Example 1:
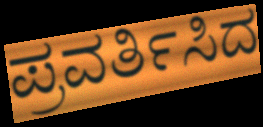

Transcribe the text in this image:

ಪ್ರವರ್ತಿಸಿದ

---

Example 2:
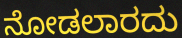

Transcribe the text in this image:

ನೋಡಲಾರದು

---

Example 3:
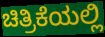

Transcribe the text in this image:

ಚಿತ್ರಿಕೆಯಲ್ಲಿ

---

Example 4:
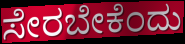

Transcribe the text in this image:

ಸೇರಬೇಕೆಂದು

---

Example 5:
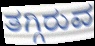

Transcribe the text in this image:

ತಗ್ಗಿರುವ